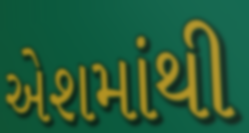
એશમાંથી